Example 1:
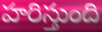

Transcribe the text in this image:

హరిస్తుంది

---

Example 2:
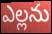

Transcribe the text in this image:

ఎల్లను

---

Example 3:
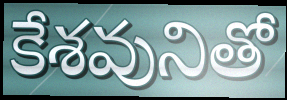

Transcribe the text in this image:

కేశవునితో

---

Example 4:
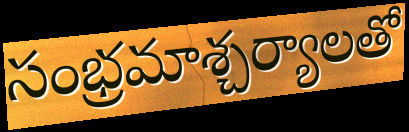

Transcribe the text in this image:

సంభ్రమాశ్చర్యాలతో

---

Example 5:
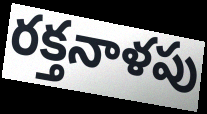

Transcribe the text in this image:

రక్తనాళపు